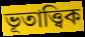
ভূতাত্ত্বিক